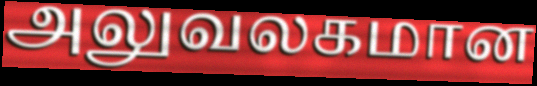
அலுவலகமான